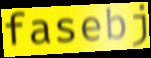
fasebj